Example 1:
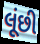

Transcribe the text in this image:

લૂંછી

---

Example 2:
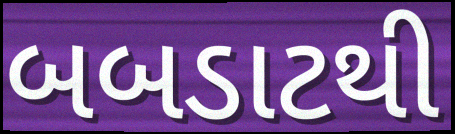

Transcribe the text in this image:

બબડાટથી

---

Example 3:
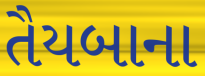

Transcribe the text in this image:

તૈયબાના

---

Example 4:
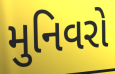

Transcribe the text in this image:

મુનિવરો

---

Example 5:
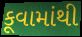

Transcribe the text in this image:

કૂવામાંથી